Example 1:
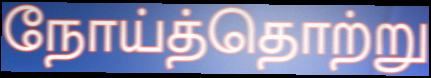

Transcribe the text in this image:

நோய்த்தொற்று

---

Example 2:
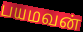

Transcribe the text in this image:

பயமவன்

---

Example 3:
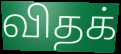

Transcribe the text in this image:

விதக்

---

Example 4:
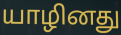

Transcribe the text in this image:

யாழினது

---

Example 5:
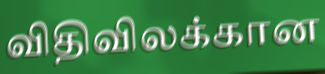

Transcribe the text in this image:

விதிவிலக்கான